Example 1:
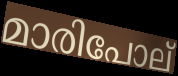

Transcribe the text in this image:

മാരിപോല്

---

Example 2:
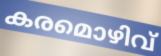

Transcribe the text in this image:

കരമൊഴിവ്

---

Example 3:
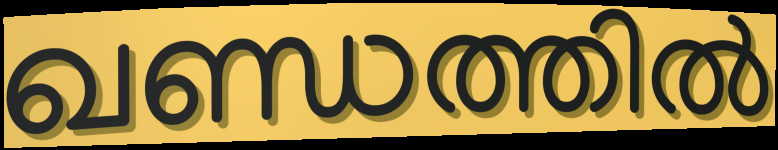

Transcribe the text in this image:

ഖണ്ഡത്തിൽ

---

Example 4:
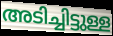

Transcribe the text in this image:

അടിച്ചിട്ടുള്ള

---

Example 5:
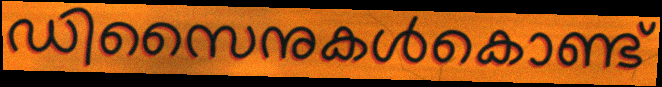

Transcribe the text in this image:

ഡിസൈനുകൾകൊണ്ട്